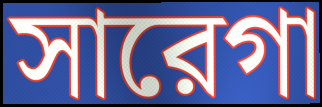
সারেগা